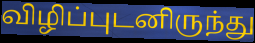
விழிப்புடனிருந்து